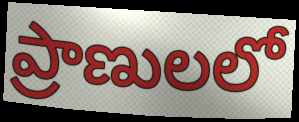
ప్రాణులలో